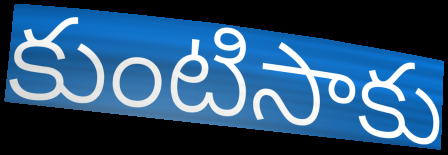
కుంటిసాకు